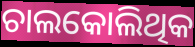
ଚାଲକୋଲିଥିକ